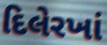
દિલેરખાં